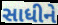
સાધીને